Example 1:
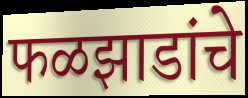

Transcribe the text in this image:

फळझाडांचे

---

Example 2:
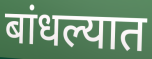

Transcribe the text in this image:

बांधल्यात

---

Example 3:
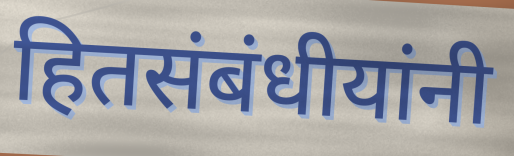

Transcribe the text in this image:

हितसंबंधीयांनी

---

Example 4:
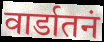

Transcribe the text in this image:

वार्डातनं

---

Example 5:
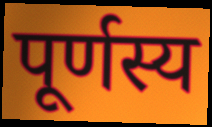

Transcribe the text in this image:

पूर्णस्य